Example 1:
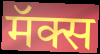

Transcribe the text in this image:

मॅक्स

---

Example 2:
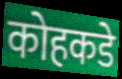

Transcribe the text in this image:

कोहकडे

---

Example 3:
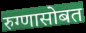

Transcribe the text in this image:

रुग्णासोबत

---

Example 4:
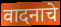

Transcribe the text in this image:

वादनाचे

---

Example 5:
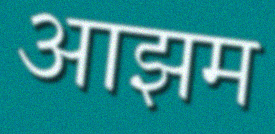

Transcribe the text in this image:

आझम